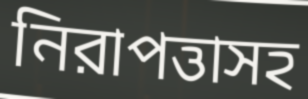
নিরাপত্তাসহ